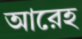
আরেহ